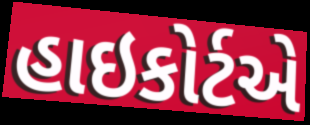
હાઇકોર્ટએ